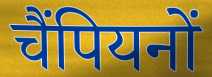
चैंपियनों